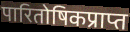
पारितोषिकप्राप्त